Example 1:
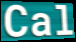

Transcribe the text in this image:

Cal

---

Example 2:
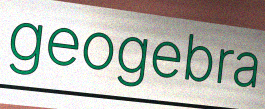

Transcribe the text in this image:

geogebra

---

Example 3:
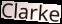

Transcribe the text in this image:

Clarke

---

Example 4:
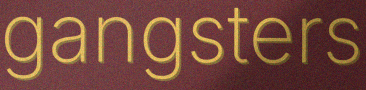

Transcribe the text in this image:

gangsters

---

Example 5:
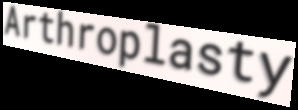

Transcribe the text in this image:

Arthroplasty